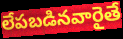
లేపబడినవారైతే